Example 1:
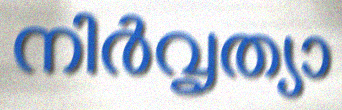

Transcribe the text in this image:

നിർവൃത്യാ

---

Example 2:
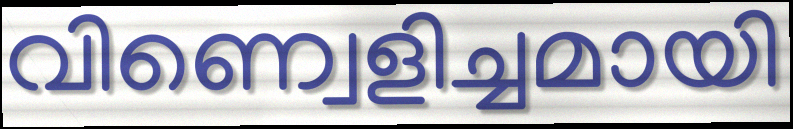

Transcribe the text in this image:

വിണ്വെളിച്ചമായി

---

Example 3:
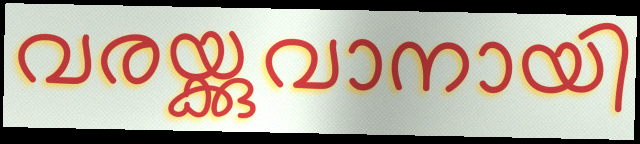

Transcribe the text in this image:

വരയ്ക്കുവാനായി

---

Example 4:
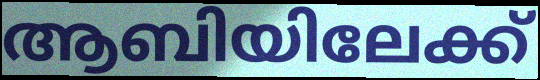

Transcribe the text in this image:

ആബിയിലേക്ക്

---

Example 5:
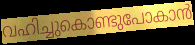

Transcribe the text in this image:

വഹിച്ചുകൊണ്ടുപോകാൻ